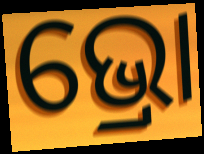
ଭ୍ରୋ